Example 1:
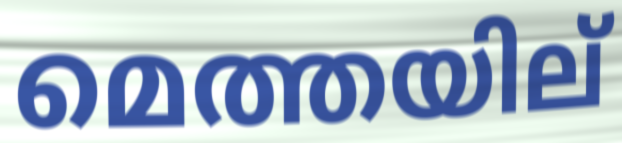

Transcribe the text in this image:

മെത്തയില്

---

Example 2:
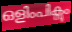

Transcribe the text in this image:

ഒളിംപിക്സും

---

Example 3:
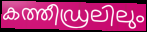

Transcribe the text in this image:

കത്തീഡ്രലിലും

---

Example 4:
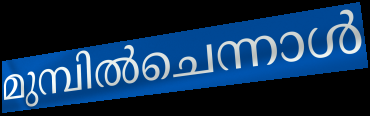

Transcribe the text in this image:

മുമ്പിൽചെന്നാൾ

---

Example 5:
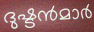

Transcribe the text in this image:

ദുഷ്ടൻമാർ